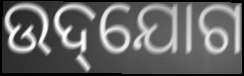
ଉଦ୍‌ଯୋଗ